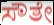
ಸೌತೇ